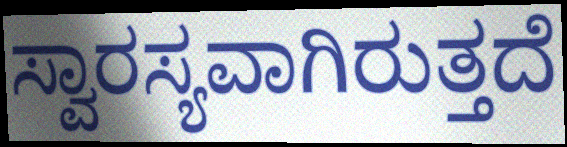
ಸ್ವಾರಸ್ಯವಾಗಿರುತ್ತದೆ